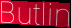
Butlin